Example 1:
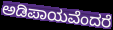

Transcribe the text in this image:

ಅಡಿಪಾಯವೆಂದರೆ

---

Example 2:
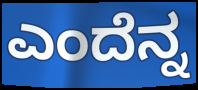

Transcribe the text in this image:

ಎಂದೆನ್ನ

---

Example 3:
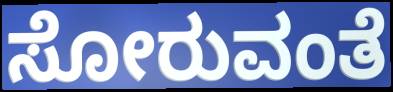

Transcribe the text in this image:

ಸೋರುವಂತೆ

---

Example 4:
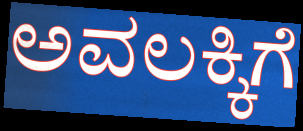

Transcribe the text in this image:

ಅವಲಕ್ಕಿಗೆ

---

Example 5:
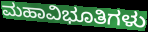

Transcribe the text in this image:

ಮಹಾವಿಭೂತಿಗಳು